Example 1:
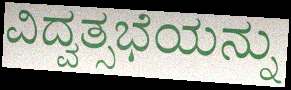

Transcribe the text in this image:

ವಿದ್ವತ್ಸಭೆಯನ್ನು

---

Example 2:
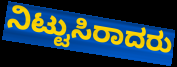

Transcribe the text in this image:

ನಿಟ್ಟುಸಿರಾದರು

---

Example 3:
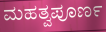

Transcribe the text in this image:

ಮಹತ್ವಪೂರ್ಣ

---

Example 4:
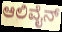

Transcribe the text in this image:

ಆಲಿವೈನ್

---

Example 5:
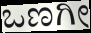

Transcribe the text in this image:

ಒಣಗೀ